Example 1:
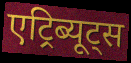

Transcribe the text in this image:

एट्रिब्यूट्स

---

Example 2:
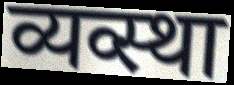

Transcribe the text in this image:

व्यव्स्था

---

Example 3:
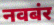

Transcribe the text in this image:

नवबंर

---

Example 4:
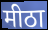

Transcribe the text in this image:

मीठा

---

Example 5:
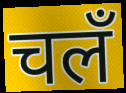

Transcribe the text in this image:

चलँ